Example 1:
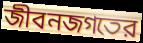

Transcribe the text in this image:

জীবনজগতের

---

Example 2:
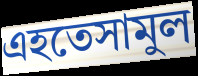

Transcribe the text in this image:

এহতেসামুল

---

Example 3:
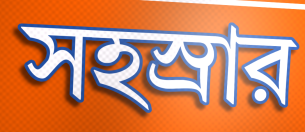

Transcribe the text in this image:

সহস্রার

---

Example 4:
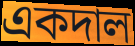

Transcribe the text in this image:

একদাল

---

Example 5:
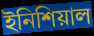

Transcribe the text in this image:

ইনিশিয়াল